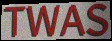
TWAS